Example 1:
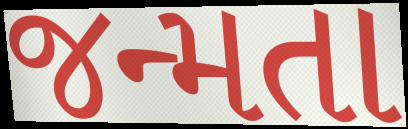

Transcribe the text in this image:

જન્મતા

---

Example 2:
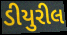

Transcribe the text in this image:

ડીયુરીલ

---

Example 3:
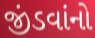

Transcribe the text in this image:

જીંડવાંનો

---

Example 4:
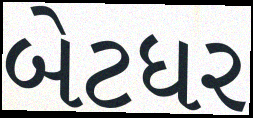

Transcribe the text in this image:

બેટધર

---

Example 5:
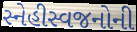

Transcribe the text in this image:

સ્નેહીસ્વજનોની